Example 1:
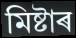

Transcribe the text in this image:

মিষ্টাৰ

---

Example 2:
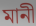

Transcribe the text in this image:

মানী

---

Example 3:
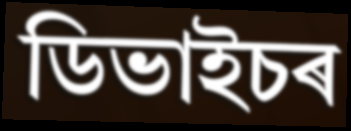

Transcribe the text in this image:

ডিভাইচৰ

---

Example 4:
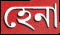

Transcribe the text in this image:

হেনা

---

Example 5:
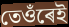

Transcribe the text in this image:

তেওঁৰেই